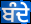
ਬੰਦੇ